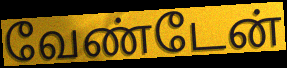
வேண்டேன்